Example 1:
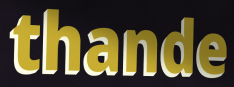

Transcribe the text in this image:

thande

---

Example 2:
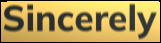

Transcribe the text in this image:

Sincerely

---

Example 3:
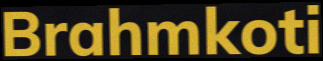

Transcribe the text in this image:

Brahmkoti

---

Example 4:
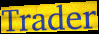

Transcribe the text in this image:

Trader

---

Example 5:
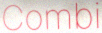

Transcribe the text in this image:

Combi